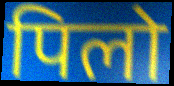
पिलो